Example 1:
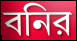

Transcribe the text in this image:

বনির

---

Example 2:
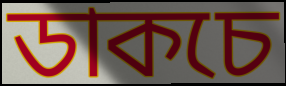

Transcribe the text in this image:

ডাকচে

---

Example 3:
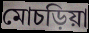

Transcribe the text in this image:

মোচড়িয়া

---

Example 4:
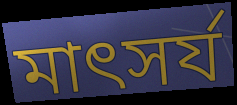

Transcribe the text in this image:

মাৎসর্য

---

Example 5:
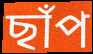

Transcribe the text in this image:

ছাঁপ